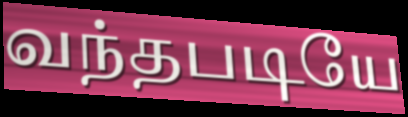
வந்தபடியே